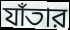
যাঁতার